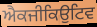
ਐਕਜੀਕਿਉਟਿਵ